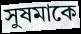
সুষমাকে